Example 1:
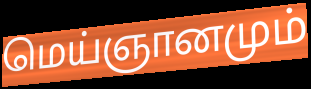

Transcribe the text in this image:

மெய்ஞானமும்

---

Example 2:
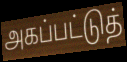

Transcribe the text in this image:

அகப்பட்டுத்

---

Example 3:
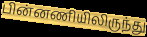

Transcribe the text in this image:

பின்னணியிலிருந்து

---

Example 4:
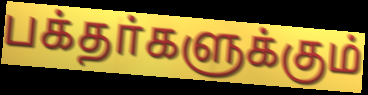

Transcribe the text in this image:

பக்தர்களுக்கும்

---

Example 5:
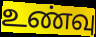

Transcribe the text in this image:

உண்வு